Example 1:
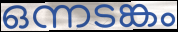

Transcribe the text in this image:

ഒന്നടങ്കം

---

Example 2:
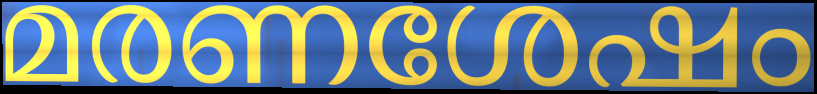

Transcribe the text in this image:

മരണശേഷം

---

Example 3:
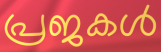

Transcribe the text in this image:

പ്രജകൾ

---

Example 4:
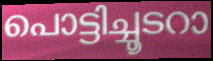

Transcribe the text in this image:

പൊട്ടിച്ചൂടറാ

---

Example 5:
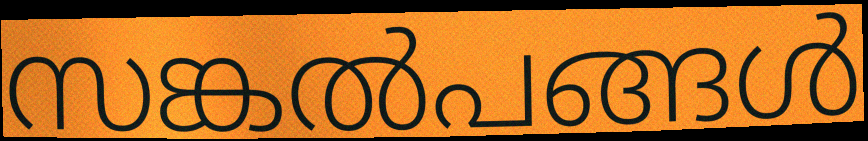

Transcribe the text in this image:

സങ്കൽപങ്ങൾ